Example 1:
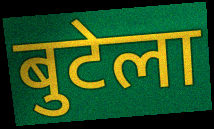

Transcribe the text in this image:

बुटेला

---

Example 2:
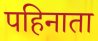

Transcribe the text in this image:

पहिनाता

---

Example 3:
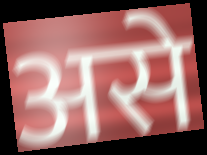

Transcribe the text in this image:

असे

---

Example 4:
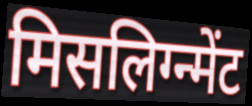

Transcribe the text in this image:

मिसलिग्न्मेंट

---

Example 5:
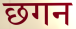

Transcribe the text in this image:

छगन